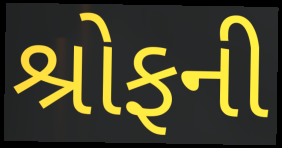
શ્રોફની